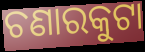
ଚଣାରକୁଟା